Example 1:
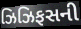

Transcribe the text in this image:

ઝિઝિફસની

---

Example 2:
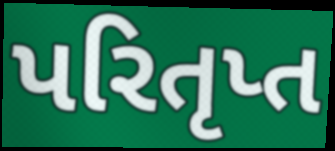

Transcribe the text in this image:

પરિતૃપ્ત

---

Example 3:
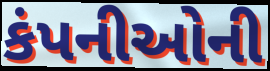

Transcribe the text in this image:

કંપનીઓની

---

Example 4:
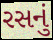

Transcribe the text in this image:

રસનું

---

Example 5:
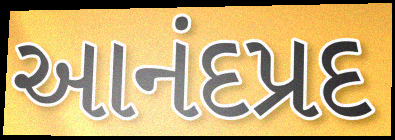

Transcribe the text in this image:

આનંદપ્રદ